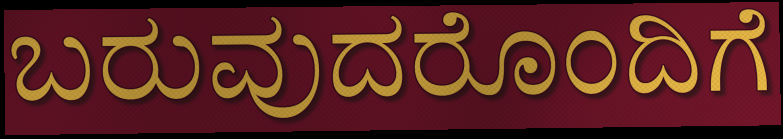
ಬರುವುದರೊಂದಿಗೆ